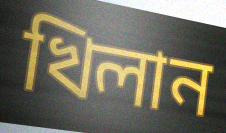
খিলান